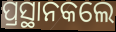
ପ୍ରସ୍ଥାନକଲେ